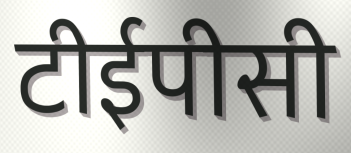
टीईपीसी